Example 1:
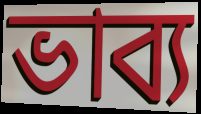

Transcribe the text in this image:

ভাব্য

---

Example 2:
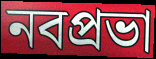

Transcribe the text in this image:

নবপ্রভা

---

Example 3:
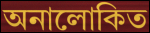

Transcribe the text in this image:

অনালোকিত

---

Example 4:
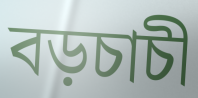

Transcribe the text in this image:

বড়চাচী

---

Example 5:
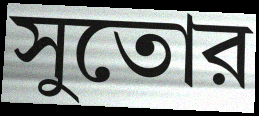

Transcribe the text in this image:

সুতোর